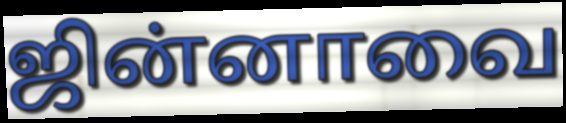
ஜின்னாவை